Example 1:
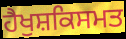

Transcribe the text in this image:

ਹੈਖੁਸ਼ਕਿਸਮਤ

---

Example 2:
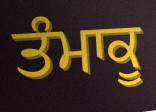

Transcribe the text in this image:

ਤੰਮਾਕੂ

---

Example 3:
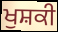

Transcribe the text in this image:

ਖੁਸ਼ਕੀ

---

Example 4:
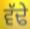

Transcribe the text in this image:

ਵੱਢੇ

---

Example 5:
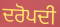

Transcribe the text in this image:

ਦਰੋਪਦੀ